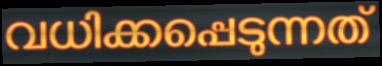
വധിക്കപ്പെടുന്നത്